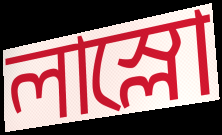
লাস্লো